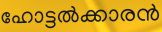
ഹോട്ടൽക്കാരൻ